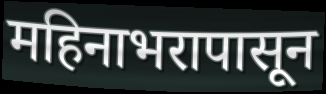
महिनाभरापासून